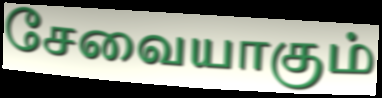
சேவையாகும்